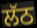
ਲੱਠ